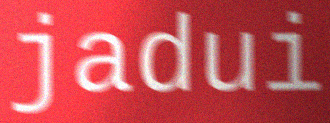
jadui